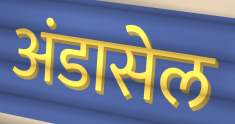
अंडासेल